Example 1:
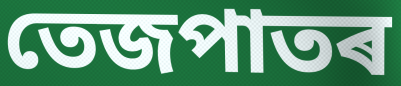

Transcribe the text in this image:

তেজপাতৰ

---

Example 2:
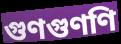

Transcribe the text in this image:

গুণগুণণি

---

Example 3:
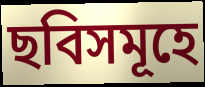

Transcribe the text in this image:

ছবিসমূহে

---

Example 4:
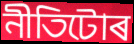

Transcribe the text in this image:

নীতিটোৰ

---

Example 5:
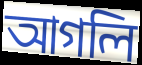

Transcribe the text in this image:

আগলি